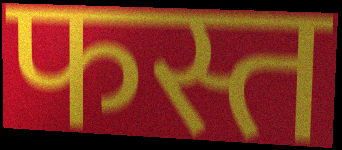
फस्त